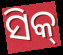
ସିକ୍